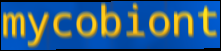
mycobiont